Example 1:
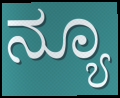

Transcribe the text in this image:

ನ್ಯೂ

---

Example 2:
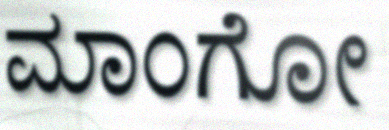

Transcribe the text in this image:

ಮಾಂಗೋ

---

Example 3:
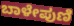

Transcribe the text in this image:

ಬಾಳೇಪುಣಿ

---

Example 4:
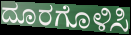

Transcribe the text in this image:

ದೂರಗೊಳಿಸಿ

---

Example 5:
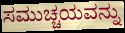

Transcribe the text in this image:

ಸಮುಚ್ಚಯವನ್ನು